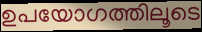
ഉപയോഗത്തിലൂടെ